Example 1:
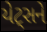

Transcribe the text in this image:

યેટ્સને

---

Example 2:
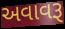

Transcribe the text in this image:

અવાવરૂ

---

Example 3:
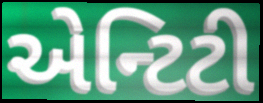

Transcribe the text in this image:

એન્ટિટી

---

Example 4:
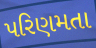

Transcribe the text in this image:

પરિણમતા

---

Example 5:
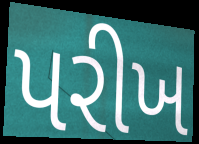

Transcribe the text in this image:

પરીખ